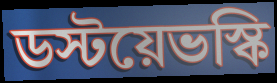
ডস্টয়েভস্কি